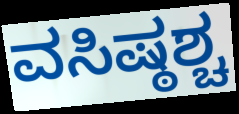
ವಸಿಷ್ಠಶ್ಚ